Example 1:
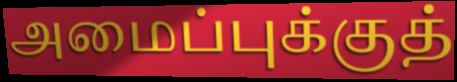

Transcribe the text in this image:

அமைப்புக்குத்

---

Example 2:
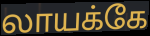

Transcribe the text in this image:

லாயக்கே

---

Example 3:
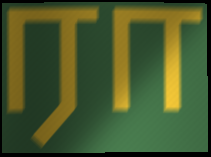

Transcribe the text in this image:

ரா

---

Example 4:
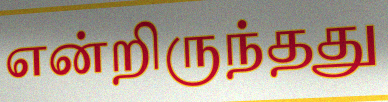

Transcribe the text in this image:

என்றிருந்தது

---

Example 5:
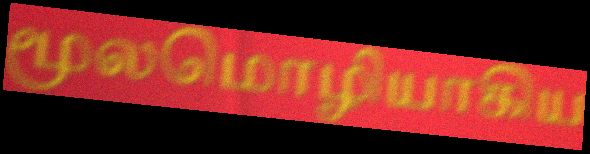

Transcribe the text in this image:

மூலமொழியாகிய